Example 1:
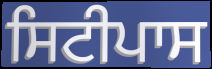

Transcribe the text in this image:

ਸਿਟੀਪਾਸ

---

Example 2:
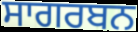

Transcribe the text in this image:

ਸਾਗਰਬਨ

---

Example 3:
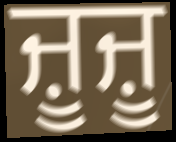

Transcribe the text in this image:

ਜ਼ੂਜ਼ੂ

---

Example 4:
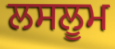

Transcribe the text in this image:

ਲਸਲੂਮ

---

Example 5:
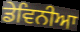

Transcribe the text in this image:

ਡੇਵਿਨੀਆ